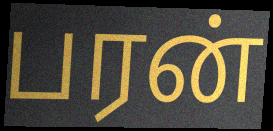
பரன்